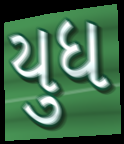
યુધ